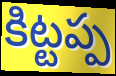
కిట్టప్ప